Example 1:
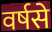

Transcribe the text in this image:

वर्षसे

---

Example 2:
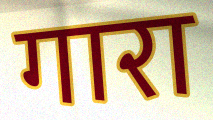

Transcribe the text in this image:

गारा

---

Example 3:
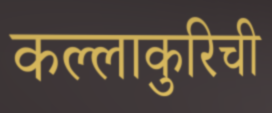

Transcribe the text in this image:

कल्लाकुरिची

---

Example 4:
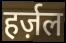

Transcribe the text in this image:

हर्ज़ल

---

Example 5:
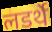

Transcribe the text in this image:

लडर्थे